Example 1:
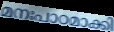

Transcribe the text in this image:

മനഃപാഠമാക്കി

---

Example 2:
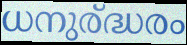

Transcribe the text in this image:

ധനുര്ദ്ധരം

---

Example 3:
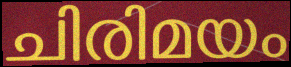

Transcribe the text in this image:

ചിരിമയം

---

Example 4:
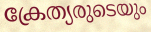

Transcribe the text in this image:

ക്രേത്യരുടെയും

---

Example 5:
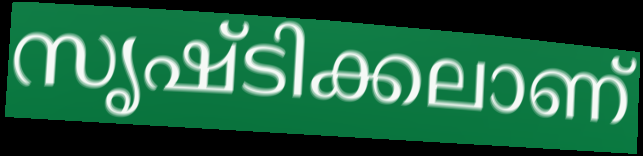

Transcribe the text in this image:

സൃഷ്ടിക്കലാണ്